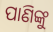
ପାଣିଙ୍କୁ